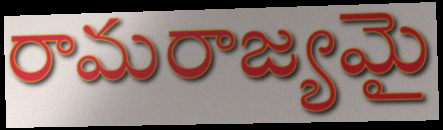
రామరాజ్యమై